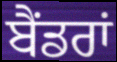
ਬੈਂਡਰਾਂ